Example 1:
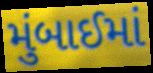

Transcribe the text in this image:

મુંબાઈમાં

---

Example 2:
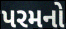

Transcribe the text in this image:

પરમનો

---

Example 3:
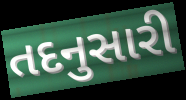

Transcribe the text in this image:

તદનુસારી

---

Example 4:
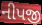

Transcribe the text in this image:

નીપજી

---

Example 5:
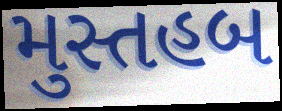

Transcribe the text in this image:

મુસ્તહબ